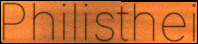
Philisthei